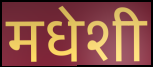
मधेशी